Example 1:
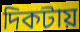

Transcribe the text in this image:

দিকটায়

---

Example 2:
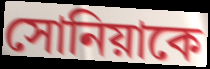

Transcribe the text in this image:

সোনিয়াকে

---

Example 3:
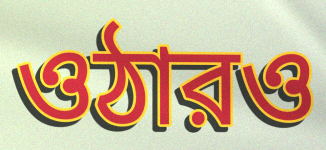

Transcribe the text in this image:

ওঠারও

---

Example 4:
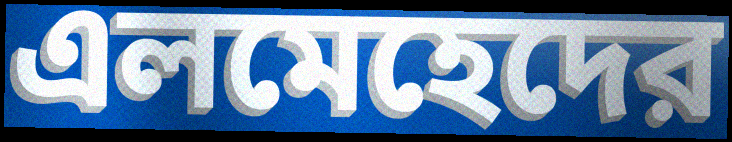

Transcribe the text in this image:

এলমেহেদের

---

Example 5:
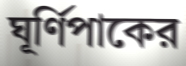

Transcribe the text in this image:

ঘূর্ণিপাকের